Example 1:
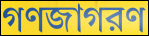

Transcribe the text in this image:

গণজাগরণ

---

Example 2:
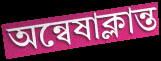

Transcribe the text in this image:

অন্বেষাক্লান্ত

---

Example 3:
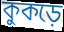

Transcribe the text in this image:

কুকড়ে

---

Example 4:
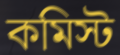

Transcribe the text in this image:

কমিস্ট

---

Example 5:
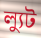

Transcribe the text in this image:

ল্যুট